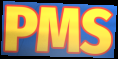
PMS